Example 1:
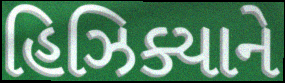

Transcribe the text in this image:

હિઝિક્યાને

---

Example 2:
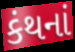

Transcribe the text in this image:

કંથનાં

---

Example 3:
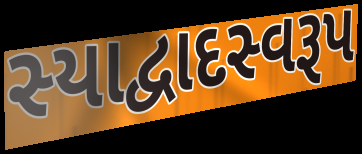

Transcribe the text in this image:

સ્યાદ્વાદસ્વરૂપ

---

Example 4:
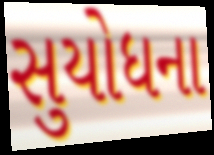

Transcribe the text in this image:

સુયોધના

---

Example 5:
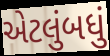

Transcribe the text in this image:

એટલુંબધું